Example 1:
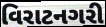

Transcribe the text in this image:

વિરાટનગરી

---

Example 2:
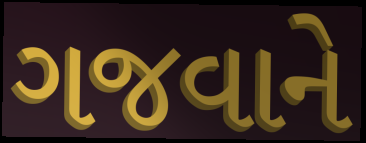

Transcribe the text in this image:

ગજવાને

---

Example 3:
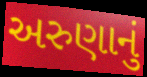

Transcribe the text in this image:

અરુણાનું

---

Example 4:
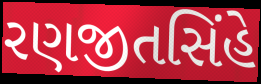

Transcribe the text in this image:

રણજીતસિંહે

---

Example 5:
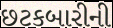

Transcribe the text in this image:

છટકબારીની